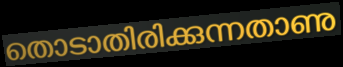
തൊടാതിരിക്കുന്നതാണു